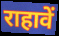
राहावें